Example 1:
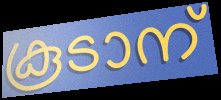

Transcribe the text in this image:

കൂടാന്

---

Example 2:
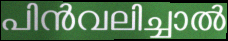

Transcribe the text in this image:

പിൻവലിച്ചാൽ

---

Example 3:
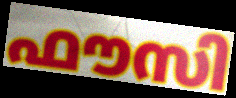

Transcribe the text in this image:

ഫൗസി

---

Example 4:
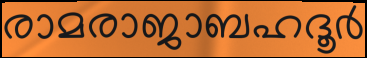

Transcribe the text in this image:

രാമരാജാബഹദൂർ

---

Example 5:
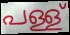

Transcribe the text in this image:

പള്ള്